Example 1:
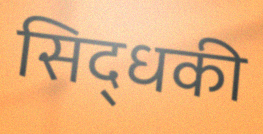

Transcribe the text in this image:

सिद्धकी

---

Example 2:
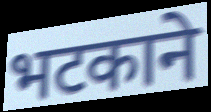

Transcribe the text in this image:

भटकाने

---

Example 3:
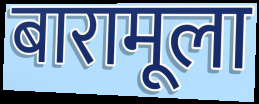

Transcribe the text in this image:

बारामूला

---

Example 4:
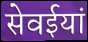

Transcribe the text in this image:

सेवईयां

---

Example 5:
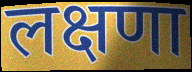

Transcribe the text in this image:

लक्षणा